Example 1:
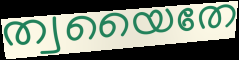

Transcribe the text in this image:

ത്വയൈതേ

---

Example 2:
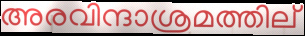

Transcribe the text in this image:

അരവിന്ദാശ്രമത്തില്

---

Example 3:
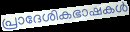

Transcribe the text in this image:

പ്രാദേശികഭാഷകൾ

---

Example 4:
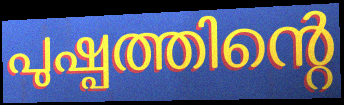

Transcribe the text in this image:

പുഷ്പത്തിന്റെ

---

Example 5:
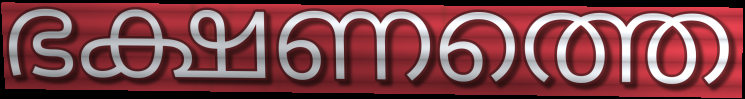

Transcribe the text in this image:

ഭക്ഷണത്തെ